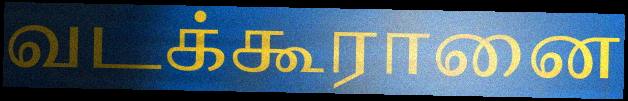
வடக்கூரானை